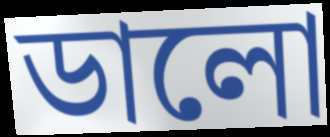
ডালো